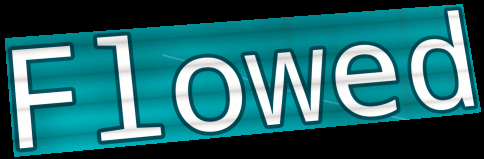
Flowed